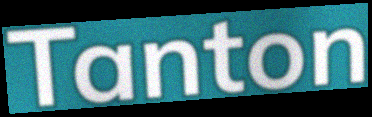
Tanton